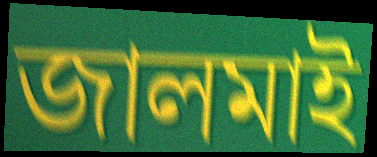
জালমাই